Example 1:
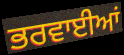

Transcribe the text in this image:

ਭਰਵਾਈਆਂ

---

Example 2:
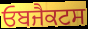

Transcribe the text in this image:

ਓਬਜੈਕਟਸ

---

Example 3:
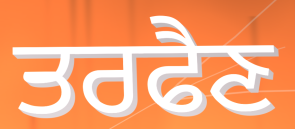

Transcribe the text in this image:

ਤਰਫੈਣ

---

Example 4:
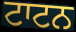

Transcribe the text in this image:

ਟਾਟਨ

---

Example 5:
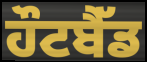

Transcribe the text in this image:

ਹੌਟਬੈੱਡ